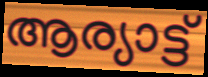
ആര്യാട്ട്